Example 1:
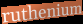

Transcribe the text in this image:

ruthenium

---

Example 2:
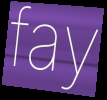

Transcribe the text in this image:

fay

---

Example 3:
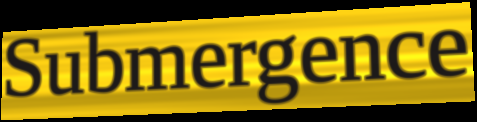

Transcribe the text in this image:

Submergence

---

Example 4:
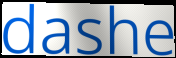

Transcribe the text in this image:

dashe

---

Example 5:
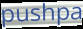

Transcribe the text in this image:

pushpa